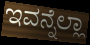
ಇವನ್ನೆಲ್ಲಾ